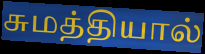
சுமத்தியால்